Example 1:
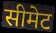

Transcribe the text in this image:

सीमेट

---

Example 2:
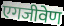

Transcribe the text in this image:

एगजीवेण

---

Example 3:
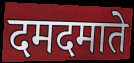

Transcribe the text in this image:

दमदमाते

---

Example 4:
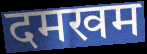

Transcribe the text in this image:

दमखम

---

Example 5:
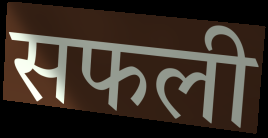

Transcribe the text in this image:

सफली